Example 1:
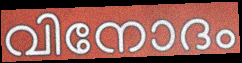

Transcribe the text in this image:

വിനോദം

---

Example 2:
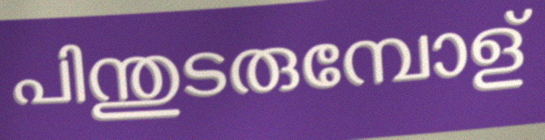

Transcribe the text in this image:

പിന്തുടരുമ്പോള്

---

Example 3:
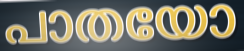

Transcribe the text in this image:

പാതയോ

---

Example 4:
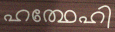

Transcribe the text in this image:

ഹത്ഥേഹി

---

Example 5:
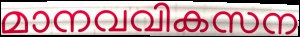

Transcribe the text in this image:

മാനവവികസന